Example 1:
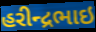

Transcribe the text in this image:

હરીન્દ્રભાઇ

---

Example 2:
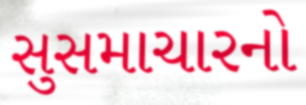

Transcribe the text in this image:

સુસમાચારનો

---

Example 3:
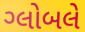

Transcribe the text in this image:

ગ્લોબલે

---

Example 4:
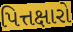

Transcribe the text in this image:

પિત્તક્ષારો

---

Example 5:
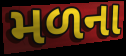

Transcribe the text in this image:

મળના